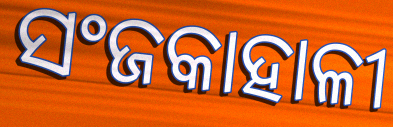
ସଂଜକାହାଳୀ